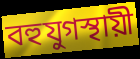
বহুযুগস্থায়ী